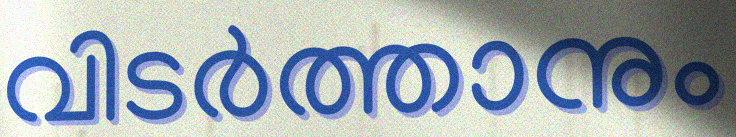
വിടർത്താനും